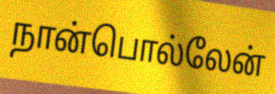
நான்பொல்லேன்